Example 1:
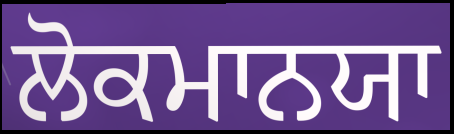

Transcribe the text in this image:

ਲੋਕਮਾਨਯਾ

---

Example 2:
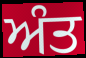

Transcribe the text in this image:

ਅੰਤ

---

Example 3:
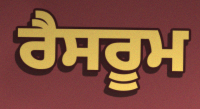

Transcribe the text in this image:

ਰੈਸਰੂਮ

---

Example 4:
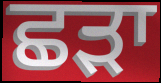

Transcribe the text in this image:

ਛਡ਼ਾ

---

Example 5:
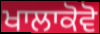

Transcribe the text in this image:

ਖਾਲਾਕੋਵੋ